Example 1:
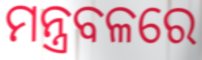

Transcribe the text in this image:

ମନ୍ତ୍ରବଳରେ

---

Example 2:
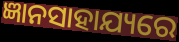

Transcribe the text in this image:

ଜ୍ଞାନସାହାଯ୍ୟରେ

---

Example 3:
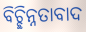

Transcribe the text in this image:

ବିଚ୍ଛିନ୍ନତାବାଦ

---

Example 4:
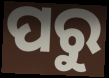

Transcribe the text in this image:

ପରୁ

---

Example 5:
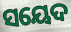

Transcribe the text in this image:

ସୟେଦ